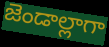
జెండాల్లాగా